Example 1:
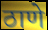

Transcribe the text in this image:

ठाणे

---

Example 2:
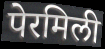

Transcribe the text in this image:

पेरमिली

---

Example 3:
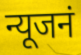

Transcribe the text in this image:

न्यूजनं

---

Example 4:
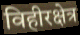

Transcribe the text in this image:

विहीरक्षेत्र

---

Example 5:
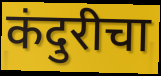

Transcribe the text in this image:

कंदुरीचा